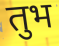
तुभ